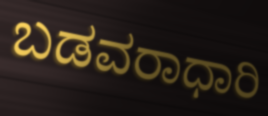
ಬಡವರಾಧಾರಿ